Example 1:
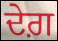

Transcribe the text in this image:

ਦੇਗ਼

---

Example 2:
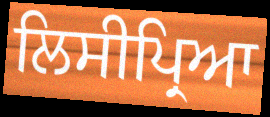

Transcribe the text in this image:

ਲਿਸੀਪ੍ਰਿਆ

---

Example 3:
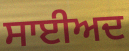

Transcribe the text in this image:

ਸਾਈਅਦ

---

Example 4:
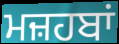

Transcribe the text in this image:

ਮਜ਼ਹਬਾਂ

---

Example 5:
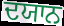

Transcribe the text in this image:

ਦਯਾਨ